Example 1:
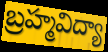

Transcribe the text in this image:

బ్రహ్మవిద్యా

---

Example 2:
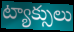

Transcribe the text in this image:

ట్యాక్సులు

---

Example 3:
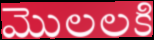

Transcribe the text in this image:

మొలలకి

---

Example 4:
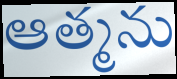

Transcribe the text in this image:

ఆత్మను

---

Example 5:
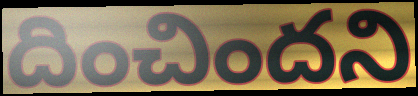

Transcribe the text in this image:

దించిందని